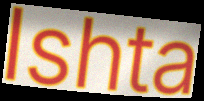
Ishta